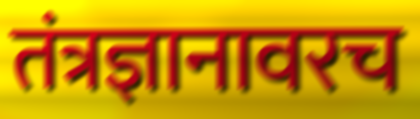
तंत्रज्ञानावरच